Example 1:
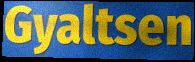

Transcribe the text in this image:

Gyaltsen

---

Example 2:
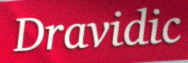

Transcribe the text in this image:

Dravidic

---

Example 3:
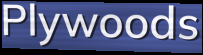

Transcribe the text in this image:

Plywoods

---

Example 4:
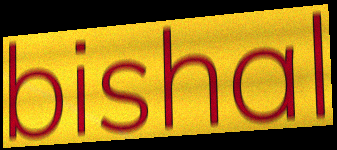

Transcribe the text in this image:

bishal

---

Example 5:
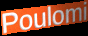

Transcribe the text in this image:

Poulomi